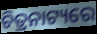
ଚିତ୍ରନାଟ୍ୟରେ